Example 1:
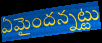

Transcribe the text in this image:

ఏమైందన్నట్టు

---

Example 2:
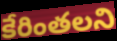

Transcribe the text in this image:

కేరింతలని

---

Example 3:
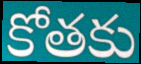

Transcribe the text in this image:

కోతకు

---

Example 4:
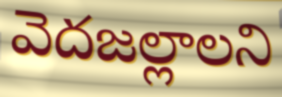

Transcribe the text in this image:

వెదజల్లాలని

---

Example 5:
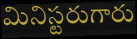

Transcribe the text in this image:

మినిస్టరుగారు